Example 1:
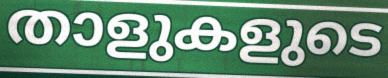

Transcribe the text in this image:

താളുകളുടെ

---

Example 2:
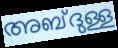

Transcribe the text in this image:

അബ്ദുള്ള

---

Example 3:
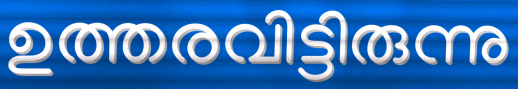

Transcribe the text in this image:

ഉത്തരവിട്ടിരുന്നു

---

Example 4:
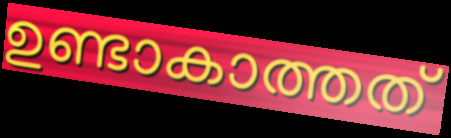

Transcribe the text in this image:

ഉണ്ടാകാത്തത്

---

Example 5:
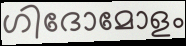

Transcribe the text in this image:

ഗിദോമോളം